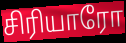
சிரியாரோ